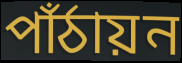
পাঁঠায়ন